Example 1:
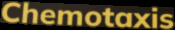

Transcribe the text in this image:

Chemotaxis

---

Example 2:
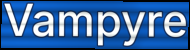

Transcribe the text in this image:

Vampyre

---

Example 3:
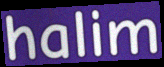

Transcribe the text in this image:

halim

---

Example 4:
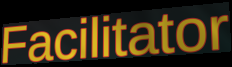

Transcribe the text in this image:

Facilitator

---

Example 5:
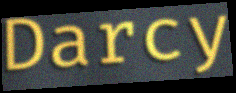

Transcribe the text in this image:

Darcy